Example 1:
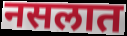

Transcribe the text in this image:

नसलात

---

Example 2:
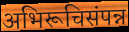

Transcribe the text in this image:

अभिरूचिसंपन्न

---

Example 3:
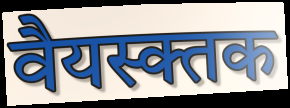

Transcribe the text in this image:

वैयस्क्तक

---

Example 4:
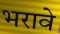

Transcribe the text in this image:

भरावे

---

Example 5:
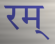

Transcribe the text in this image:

रम्